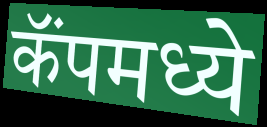
कॅंपमध्ये